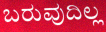
ಬರುವುದಿಲ್ಲ